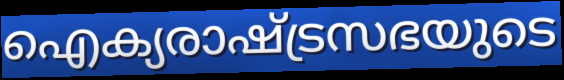
ഐക്യരാഷ്ട്രസഭയുടെ